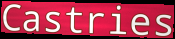
Castries